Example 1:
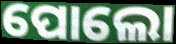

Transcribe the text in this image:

ପୋଲୋ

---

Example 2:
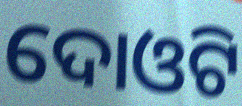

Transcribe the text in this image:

ଦୋଓଟି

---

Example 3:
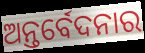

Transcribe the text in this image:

ଅନ୍ତର୍ବେଦନାର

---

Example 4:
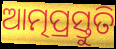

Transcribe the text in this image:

ଆତ୍ମପ୍ରସ୍ତୁତି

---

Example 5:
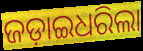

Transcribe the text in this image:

ଜଡ଼ାଇଧରିଲା